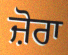
ਜ਼ੋਰਾ